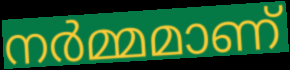
നർമ്മമാണ്